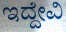
ಇದ್ದೇವಿ